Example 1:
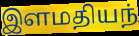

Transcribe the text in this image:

இளமதியந்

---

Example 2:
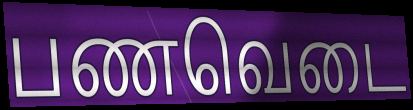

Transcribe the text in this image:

பணவெடை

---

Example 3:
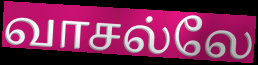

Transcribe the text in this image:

வாசல்லே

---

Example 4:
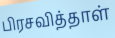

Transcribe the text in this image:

பிரசவித்தாள்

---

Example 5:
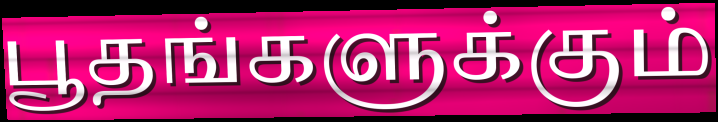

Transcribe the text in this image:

பூதங்களுக்கும்